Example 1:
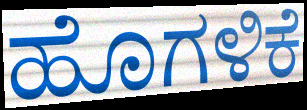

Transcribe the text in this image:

ಹೊಗಳಿಕೆ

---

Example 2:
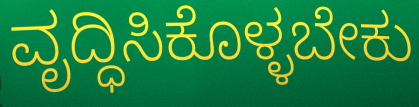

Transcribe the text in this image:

ವೃದ್ಧಿಸಿಕೊಳ್ಳಬೇಕು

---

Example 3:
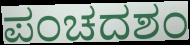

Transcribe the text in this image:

ಪಂಚದಶಂ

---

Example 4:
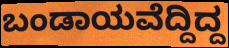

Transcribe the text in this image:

ಬಂಡಾಯವೆದ್ದಿದ್ದ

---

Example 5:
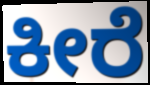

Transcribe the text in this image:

ಕೀರೆ